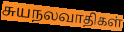
சுயநலவாதிகள்